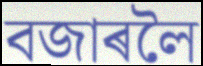
বজাৰলৈ